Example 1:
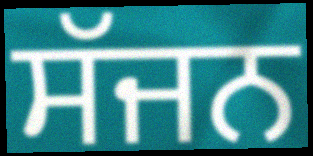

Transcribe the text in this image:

ਸੱਜਨ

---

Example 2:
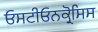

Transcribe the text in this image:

ਓਸਟੀਓਨਕ੍ਰੋਸਿਸ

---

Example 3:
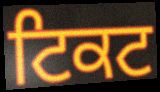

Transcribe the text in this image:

ਟਿਕਟ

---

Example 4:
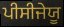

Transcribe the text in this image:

ਪੀਸੀਜੇਯੂ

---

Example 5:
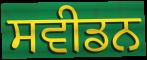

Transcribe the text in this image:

ਸਵੀਡਨ